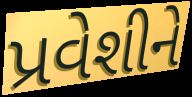
પ્રવેશીને